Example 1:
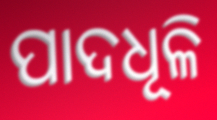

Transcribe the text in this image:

ପାଦଧୂଳି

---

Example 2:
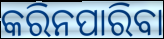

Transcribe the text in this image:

କରିନପାରିବା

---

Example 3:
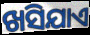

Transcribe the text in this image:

ଖସିଯାଏ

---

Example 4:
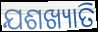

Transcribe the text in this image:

ଯଶଖ୍ୟାତି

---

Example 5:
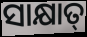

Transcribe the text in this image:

ସାକ୍ଷାତ୍